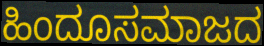
ಹಿಂದೂಸಮಾಜದ